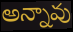
అన్నావు